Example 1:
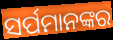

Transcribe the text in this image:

ସର୍ପମାନଙ୍କର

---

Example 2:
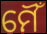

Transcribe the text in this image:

ମୈଁ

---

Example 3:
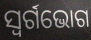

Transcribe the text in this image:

ସ୍ୱର୍ଗଭୋଗ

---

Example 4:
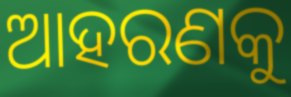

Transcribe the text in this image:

ଆହରଣକୁ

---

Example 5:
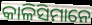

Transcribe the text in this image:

କାଳିସିମାନେ